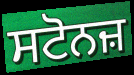
ਸਟੋਨਜ਼